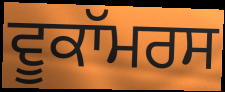
ਵੂਕਾੱਮਰਸ